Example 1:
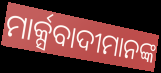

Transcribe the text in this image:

ମାର୍କ୍ସବାଦୀମାନଙ୍କ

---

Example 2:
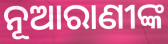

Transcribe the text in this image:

ନୂଆରାଣୀଙ୍କ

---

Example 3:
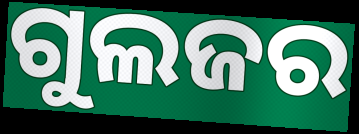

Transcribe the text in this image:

ଗୁଲଜର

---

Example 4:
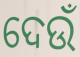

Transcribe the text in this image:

ଦେଉଁ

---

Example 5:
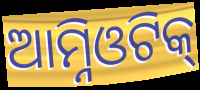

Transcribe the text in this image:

ଆମ୍ନିଓଟିକ୍